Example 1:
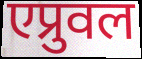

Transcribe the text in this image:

एप्रुवल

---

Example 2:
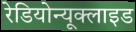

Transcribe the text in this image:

रेडियोन्यूक्लाइड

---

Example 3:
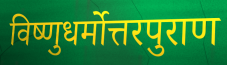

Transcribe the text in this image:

विष्णुधर्मोत्तरपुराण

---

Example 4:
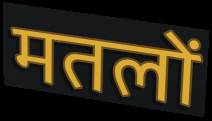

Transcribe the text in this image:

मतलों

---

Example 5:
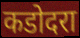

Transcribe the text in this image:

कडोदरा